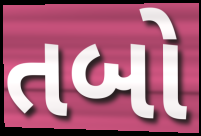
તબો